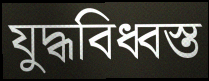
যুদ্ধবিধ্বস্ত